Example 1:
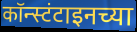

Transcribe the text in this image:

कॉन्स्टंटाइनच्या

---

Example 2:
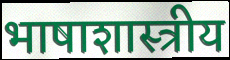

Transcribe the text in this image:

भाषाशास्त्रीय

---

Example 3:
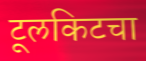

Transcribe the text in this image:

टूलकिटचा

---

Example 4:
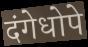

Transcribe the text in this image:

दंगेधोपे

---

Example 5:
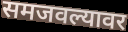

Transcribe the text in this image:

समजवल्यावर